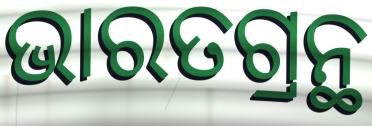
ଭାରତଗ୍ରନ୍ଥ